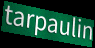
tarpaulin